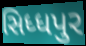
સિધ્ધપુર